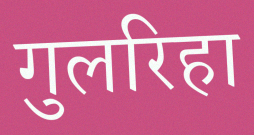
गुलरिहा